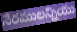
నేరములన్నియు